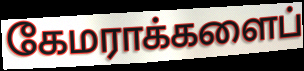
கேமராக்களைப்